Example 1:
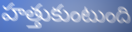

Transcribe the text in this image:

హత్తుకుంటుంది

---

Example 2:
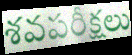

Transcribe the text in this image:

శవపరీక్షలు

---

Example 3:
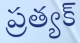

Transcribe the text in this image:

ప్రత్యక్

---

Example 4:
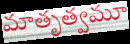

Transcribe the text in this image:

మాతృత్వమూ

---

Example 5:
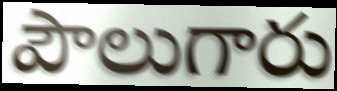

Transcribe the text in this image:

పౌలుగారు